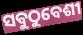
ସବୁଠୁବେଶୀ